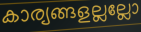
കാര്യങ്ങളല്ലല്ലോ